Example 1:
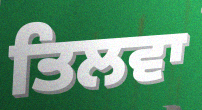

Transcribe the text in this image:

ਤਿਲਵਾ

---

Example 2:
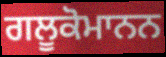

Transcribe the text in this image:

ਗਲੂਕੋਮਾਨਨ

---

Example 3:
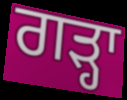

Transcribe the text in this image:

ਗੜ੍ਹਾ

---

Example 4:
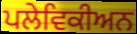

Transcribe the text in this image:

ਪਲੇਵਿਕੀਅਨ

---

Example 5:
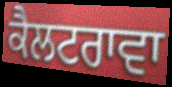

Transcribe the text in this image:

ਕੈਲਟਰਾਵਾ